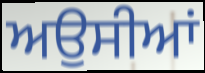
ਅਉਸੀਆਂ